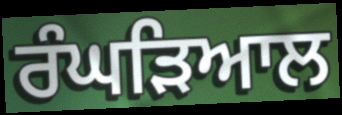
ਰੰਘੜਿਆਲ